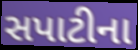
સપાટીના